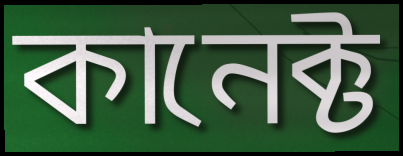
কানেক্ট